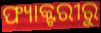
ଫ୍ୟାକ୍ଟରୀରୁ